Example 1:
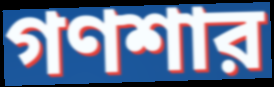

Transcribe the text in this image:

গণশার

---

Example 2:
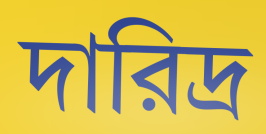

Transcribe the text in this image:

দারিদ্র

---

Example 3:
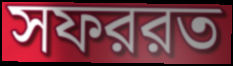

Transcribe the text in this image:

সফররত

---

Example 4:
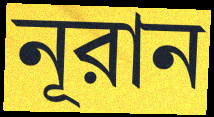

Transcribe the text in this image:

নূরান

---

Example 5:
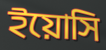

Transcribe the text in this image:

ইয়োসি